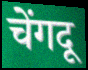
चेंगदू